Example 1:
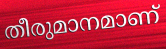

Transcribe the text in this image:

തീരുമാനമാണ്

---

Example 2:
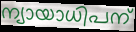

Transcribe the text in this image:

ന്യായാധിപന്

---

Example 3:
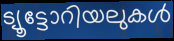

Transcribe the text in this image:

ട്യൂട്ടോറിയലുകൾ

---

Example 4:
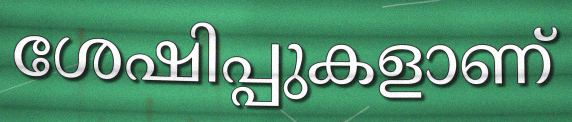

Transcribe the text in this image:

ശേഷിപ്പുകളാണ്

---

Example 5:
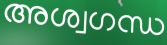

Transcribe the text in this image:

അശ്വഗന്ധ